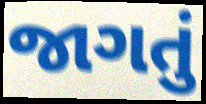
જાગતું